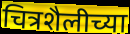
चित्रशैलीच्या